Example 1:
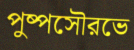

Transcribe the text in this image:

পুষ্পসৌরভে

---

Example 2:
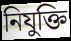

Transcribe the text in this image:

নিযুক্তি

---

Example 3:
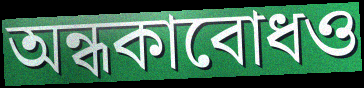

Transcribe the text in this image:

অন্ধকাবোধও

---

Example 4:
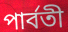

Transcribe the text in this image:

পার্বতী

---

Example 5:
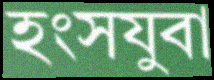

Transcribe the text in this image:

হংসযুবা